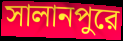
সালানপুরে